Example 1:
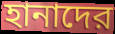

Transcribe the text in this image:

হানাদের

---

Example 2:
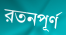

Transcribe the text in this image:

রতনপূর্ণ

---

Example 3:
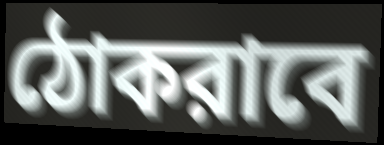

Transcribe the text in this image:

ঠোকরাবে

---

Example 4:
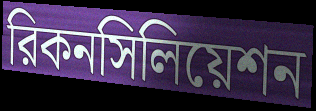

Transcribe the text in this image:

রিকনসিলিয়েশন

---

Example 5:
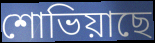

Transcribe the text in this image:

শোভিয়াছে